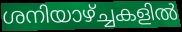
ശനിയാഴ്ച്ചകളിൽ